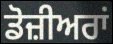
ਡੋਜ਼ੀਅਰਾਂ